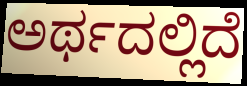
ಅರ್ಥದಲ್ಲಿದೆ